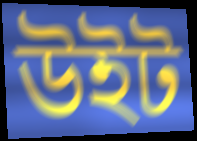
উইট